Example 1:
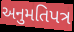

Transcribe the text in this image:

અનુમતિપત્ર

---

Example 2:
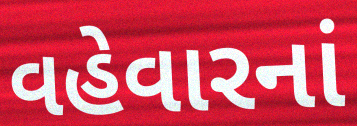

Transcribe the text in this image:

વહેવારનાં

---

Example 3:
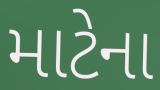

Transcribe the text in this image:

માટેના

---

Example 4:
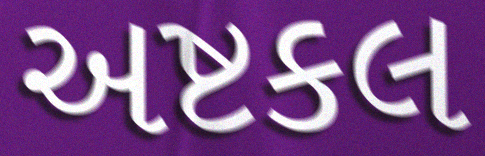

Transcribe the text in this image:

અષ્ટકલ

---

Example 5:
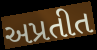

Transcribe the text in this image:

અપ્રતીત